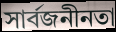
সাৰ্বজনীনতা